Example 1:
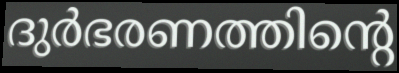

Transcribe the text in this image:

ദുർഭരണത്തിന്റെ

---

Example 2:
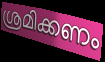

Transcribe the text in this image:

ശ്രമിക്കണം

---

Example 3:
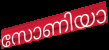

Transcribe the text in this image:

സോണിയാ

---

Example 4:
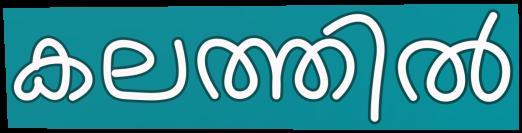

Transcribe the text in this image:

കലത്തിൽ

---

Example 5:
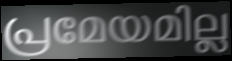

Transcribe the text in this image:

പ്രമേയമില്ല